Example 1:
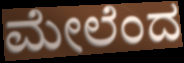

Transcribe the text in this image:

ಮೇಲೆಂದ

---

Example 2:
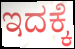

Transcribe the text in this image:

ಇದಕ್ಕೆ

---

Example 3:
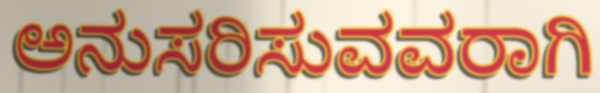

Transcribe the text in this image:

ಅನುಸರಿಸುವವರಾಗಿ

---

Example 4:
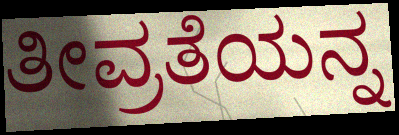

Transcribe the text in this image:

ತೀವ್ರತೆಯನ್ನ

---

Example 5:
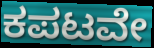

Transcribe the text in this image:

ಕಪಟವೇ